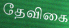
தேவிகை